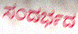
ಸಂದರ್ಭದ